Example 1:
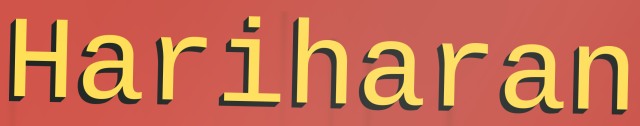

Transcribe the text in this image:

Hariharan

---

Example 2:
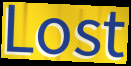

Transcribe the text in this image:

Lost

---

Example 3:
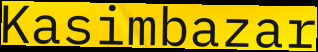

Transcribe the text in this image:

Kasimbazar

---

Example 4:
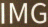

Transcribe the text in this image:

IMG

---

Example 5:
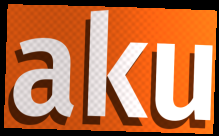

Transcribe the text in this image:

aku